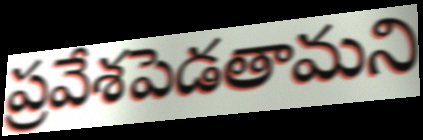
ప్రవేశపెడతామని